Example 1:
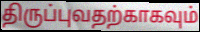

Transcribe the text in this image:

திருப்புவதற்காகவும்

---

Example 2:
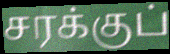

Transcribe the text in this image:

சரக்குப்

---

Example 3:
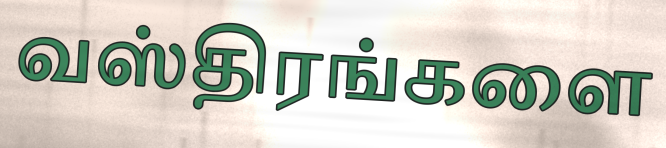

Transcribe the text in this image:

வஸ்திரங்களை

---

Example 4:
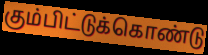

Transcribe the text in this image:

கும்பிட்டுக்கொண்டு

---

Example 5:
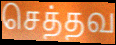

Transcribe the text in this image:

செத்தவ